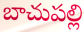
బాచుపల్లి